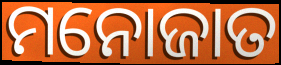
ମନୋଜାତ